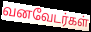
வனவேடர்கள்